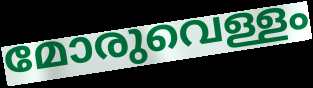
മോരുവെള്ളം